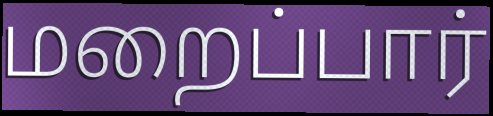
மறைப்பார்